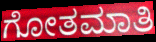
ಗೋತಮಾತಿ